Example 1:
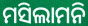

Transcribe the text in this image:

ମସିଲାମନି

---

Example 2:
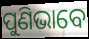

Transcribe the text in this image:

ପୁଣିଭାବେ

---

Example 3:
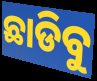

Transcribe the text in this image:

ଛାଡିବୁ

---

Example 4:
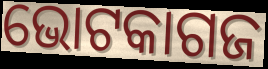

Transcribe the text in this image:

ଭୋଟକାଗଜ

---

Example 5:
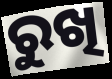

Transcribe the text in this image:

ରୁଖି